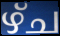
ഴ്ച